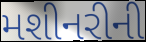
મશીનરીની